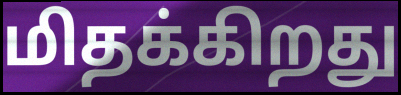
மிதக்கிறது